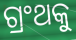
ଗ୍ରଂଥକୁ